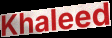
Khaleed